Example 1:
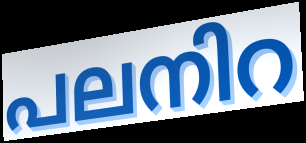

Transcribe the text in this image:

പലനിറ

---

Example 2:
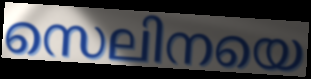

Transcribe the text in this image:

സെലിനയെ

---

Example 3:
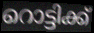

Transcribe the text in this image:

റൊട്ടിക്ക്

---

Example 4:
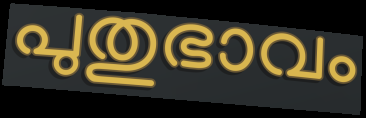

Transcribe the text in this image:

പുതുഭാവം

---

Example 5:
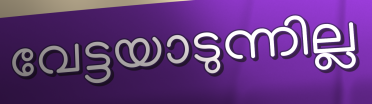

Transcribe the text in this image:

വേട്ടയാടുന്നില്ല